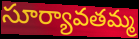
సూర్యావతమ్మ